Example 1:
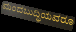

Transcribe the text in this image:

ಮಂದಬುದ್ಧಿಯವರೂ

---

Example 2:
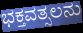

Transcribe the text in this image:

ಭಕ್ತವತ್ಸಲನು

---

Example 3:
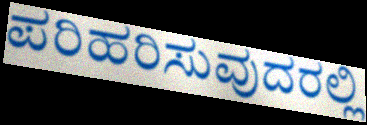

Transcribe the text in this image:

ಪರಿಹರಿಸುವುದರಲ್ಲಿ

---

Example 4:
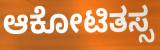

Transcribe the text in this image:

ಆಕೋಟಿತಸ್ಸ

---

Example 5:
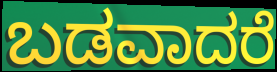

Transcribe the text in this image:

ಬಡವಾದರೆ